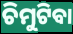
ଚିମୁଟିବା